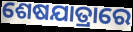
ଶେଷଯାତ୍ରାରେ